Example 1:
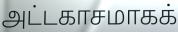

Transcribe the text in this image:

அட்டகாசமாகக்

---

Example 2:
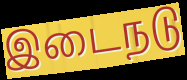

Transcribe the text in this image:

இடைநடு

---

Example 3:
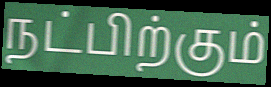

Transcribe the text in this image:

நட்பிற்கும்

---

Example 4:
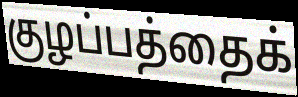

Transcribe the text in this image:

குழப்பத்தைக்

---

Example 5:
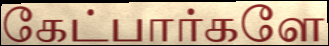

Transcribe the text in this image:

கேட்பார்களே